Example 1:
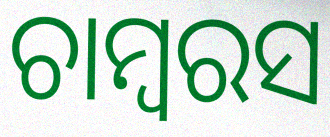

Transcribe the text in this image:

ଚାମ୍ବରସ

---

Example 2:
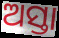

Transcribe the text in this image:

ଅସ୍ତା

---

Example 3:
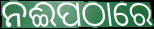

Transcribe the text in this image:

ନଈପଠାରେ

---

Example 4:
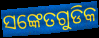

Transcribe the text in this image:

ସଙ୍କେତଗୁଡିକ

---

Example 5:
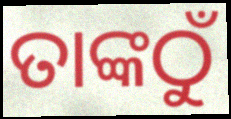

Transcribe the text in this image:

ତାଙ୍କଠୁଁ